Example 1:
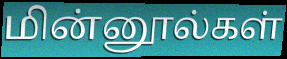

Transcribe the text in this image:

மின்னூல்கள்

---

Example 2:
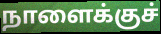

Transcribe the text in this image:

நாளைக்குச்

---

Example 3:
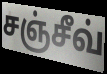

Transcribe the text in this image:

சஞ்சீவ்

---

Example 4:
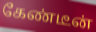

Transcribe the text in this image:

கேண்டீன்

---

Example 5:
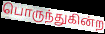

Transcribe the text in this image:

பொருந்துகின்ற